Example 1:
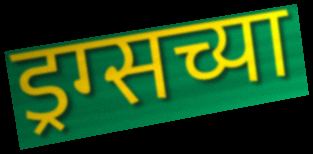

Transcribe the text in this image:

ड्रग्सच्या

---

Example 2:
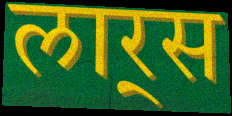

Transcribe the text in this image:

लार्स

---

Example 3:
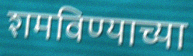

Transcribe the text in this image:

शमविण्याच्या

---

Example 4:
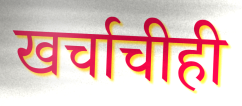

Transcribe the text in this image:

खर्चाचीही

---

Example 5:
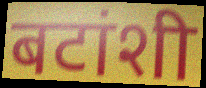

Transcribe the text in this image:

बटांशी